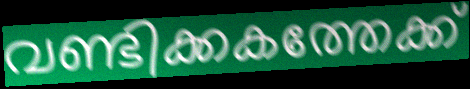
വണ്ടിക്കകത്തേക്ക്